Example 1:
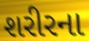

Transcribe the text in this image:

શરીરના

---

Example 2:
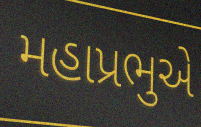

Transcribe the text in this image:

મહાપ્રભુએ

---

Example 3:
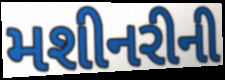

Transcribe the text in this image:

મશીનરીની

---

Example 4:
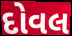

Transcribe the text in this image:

દોવલ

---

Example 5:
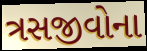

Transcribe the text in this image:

ત્રસજીવોના